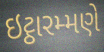
ઇટ્ઠારમ્મણે